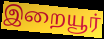
இறையூர்